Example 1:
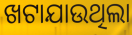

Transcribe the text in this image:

ଖଟାଯାଉଥିଲା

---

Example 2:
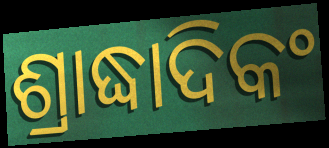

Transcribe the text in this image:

ଶ୍ରାଦ୍ଧାଦିକଂ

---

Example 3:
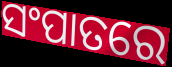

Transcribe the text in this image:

ସଂପାତରେ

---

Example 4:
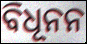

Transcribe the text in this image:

ବିଧୂନନ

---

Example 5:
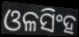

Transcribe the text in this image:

ଓଳସିଂହ